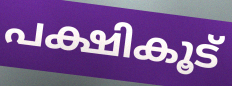
പക്ഷികൂട്